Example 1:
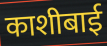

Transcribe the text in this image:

काशीबाई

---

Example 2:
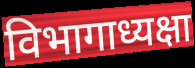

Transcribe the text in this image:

विभागाध्यक्षा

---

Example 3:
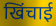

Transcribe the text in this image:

खिंचाई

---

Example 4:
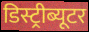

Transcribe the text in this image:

डिस्ट्रीब्यूटर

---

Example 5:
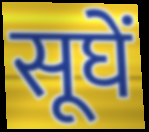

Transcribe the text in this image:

सूघें